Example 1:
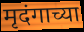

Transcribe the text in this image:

मृदंगाच्या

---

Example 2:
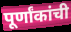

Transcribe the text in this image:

पूर्णांकांची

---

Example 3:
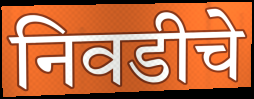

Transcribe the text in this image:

निवडीचे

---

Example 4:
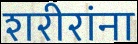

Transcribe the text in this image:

शरीरांना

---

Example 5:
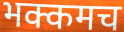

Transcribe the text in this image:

भक्कमच